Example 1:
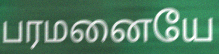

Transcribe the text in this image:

பரமனையே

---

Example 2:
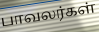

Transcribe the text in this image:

பாவலர்கள்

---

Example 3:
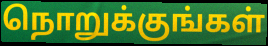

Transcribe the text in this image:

நொறுக்குங்கள்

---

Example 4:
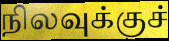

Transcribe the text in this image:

நிலவுக்குச்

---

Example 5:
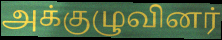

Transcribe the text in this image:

அக்குழுவினர்